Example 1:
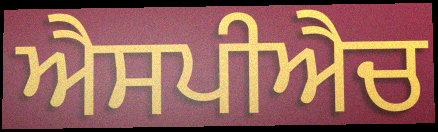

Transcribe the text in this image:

ਐਸਪੀਐਚ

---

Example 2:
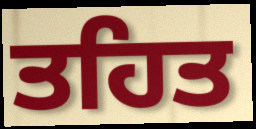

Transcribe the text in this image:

ਤਹਿਤ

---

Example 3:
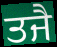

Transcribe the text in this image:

ਤਜੈ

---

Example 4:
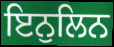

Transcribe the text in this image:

ਇਨੁਲਿਨ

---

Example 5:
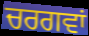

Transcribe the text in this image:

ਚਰਗਵਾਂ